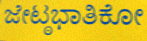
ಜೇಟ್ಠಭಾತಿಕೋ